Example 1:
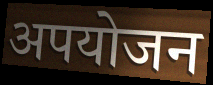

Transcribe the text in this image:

अपयोजन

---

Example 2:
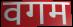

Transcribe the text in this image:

वगम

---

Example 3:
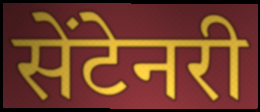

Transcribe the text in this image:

सेंटेनरी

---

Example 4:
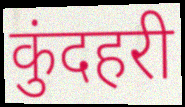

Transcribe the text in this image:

कुंदहरी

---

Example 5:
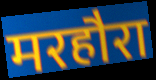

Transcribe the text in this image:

मरहौरा